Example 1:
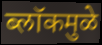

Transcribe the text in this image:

ब्लॉकमुळे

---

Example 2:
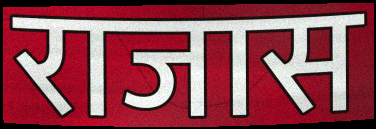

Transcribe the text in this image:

राजास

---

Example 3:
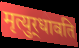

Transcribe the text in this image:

मृत्युर्धावति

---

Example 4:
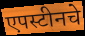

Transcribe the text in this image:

एपस्टीनचे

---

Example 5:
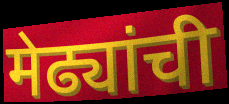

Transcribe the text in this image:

मेढ्यांची